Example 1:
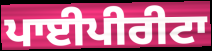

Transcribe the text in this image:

ਪਾਈਪੀਰੀਟਾ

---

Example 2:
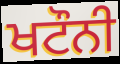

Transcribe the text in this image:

ਖਟੌਨੀ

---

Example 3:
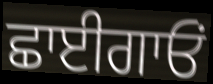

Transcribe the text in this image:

ਛਾਈਗਾਓਂ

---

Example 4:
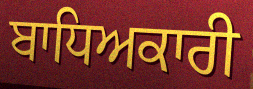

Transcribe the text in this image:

ਬਾਧਿਅਕਾਰੀ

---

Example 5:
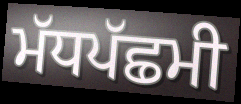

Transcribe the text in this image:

ਮੱਧਪੱਛਮੀ